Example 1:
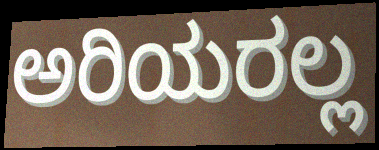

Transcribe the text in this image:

ಅರಿಯರಲ್ಲ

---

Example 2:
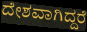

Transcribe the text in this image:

ದೇಶವಾಗಿದ್ದರೆ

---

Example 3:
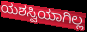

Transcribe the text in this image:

ಯಶಸ್ವಿಯಾಗಿಲ್ಲ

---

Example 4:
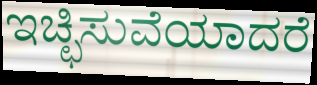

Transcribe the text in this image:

ಇಚ್ಛಿಸುವೆಯಾದರೆ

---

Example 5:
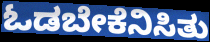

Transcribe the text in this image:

ಓಡಬೇಕೆನಿಸಿತು